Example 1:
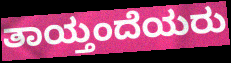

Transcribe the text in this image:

ತಾಯ್ತಂದೆಯರು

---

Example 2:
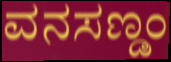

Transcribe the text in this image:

ವನಸಣ್ಡಂ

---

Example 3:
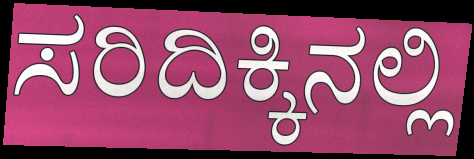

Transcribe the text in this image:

ಸರಿದಿಕ್ಕಿನಲ್ಲಿ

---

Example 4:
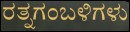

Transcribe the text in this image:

ರತ್ನಗಂಬಳಿಗಳು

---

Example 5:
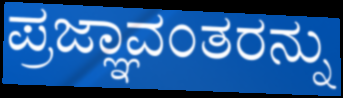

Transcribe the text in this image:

ಪ್ರಜ್ಞಾವಂತರನ್ನು